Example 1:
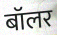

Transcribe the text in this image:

बॉलर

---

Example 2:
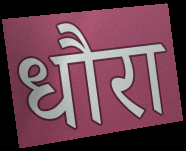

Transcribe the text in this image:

धौरा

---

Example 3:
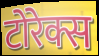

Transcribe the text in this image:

टोरेक्स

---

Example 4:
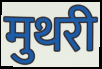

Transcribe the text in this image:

मुथरी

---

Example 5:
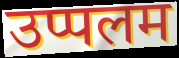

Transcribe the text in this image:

उप्पलम